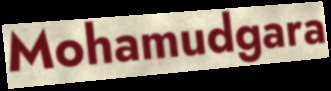
Mohamudgara